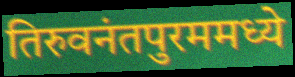
तिरुवनंतपुरममध्ये